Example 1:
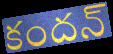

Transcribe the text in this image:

కందన్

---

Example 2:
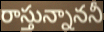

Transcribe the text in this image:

రాస్తున్నాననీ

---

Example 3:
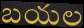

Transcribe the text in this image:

బయల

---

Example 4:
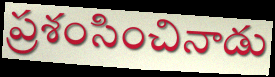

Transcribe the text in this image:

ప్రశంసించినాడు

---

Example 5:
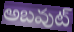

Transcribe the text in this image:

అబవుట్